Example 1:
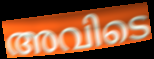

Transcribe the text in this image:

അവിടെ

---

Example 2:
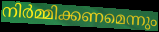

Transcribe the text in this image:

നിർമ്മിക്കണമെന്നും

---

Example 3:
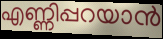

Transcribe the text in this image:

എണ്ണിപ്പറയാൻ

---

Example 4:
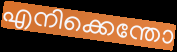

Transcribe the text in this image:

എനിക്കെന്തോ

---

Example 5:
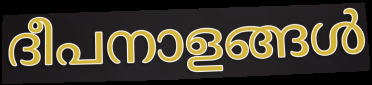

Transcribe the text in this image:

ദീപനാളങ്ങൾ